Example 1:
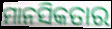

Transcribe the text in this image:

ମାନସିକତାର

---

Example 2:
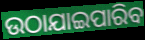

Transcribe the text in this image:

ଉଠାଯାଇପାରିବ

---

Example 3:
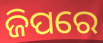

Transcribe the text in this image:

ଜିପରେ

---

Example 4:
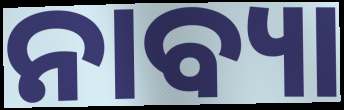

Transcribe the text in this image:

ନାବ୍ୟା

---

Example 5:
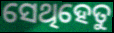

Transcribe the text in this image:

ସେଥିହେତୁ